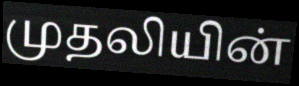
முதலியின்